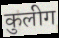
कुलीग